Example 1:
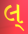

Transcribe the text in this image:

લ્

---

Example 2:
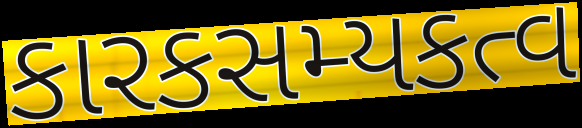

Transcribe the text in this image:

કારકસમ્યકત્વ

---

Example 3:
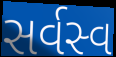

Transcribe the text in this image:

સર્વસ્વ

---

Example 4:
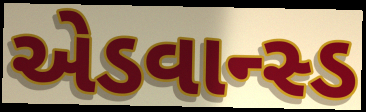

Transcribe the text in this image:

એડવાન્સ્ડ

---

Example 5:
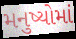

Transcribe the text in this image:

મનુષ્યોમાં